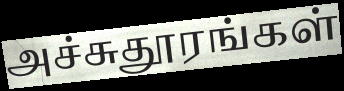
அச்சுதூரங்கள்